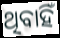
ଥିବାହିଁ